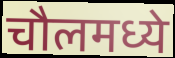
चौलमध्ये